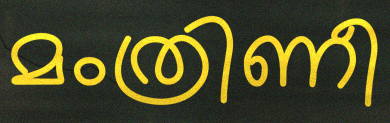
മംത്രിണീ